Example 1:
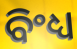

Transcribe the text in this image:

ବିଂଧ୍ୟ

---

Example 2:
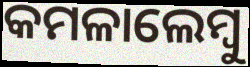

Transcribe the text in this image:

କମଳାଲେମ୍ୱୁ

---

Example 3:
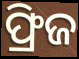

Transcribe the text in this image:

ଫ୍ରିଜ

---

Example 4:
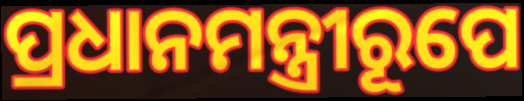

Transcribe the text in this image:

ପ୍ରଧାନମନ୍ତ୍ରୀରୂପେ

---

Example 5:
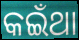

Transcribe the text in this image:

କଇଁଥା